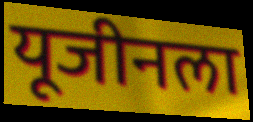
यूजीनला